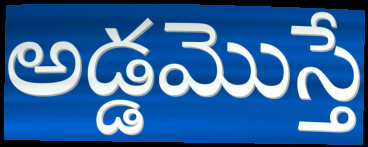
అడ్డమొస్తే